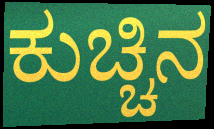
ಕುಚ್ಚಿನ